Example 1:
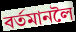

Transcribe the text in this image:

বৰ্তমানলৈ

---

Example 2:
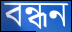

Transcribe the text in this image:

বন্ধন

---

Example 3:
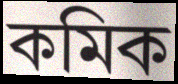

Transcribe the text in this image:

কমিক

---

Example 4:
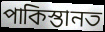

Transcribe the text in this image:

পাকিস্তানত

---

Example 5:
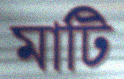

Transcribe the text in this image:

মাটি